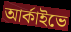
আর্কাইভে